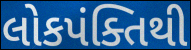
લોકપંક્તિથી